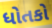
ધોતકો